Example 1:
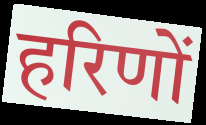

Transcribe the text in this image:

हरिणों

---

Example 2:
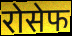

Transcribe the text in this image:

रोसेफ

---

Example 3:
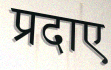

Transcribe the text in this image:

प्रदाए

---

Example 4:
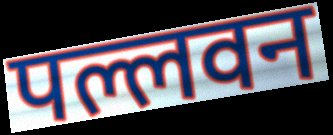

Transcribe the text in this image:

पल्लवन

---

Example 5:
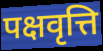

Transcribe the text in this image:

पक्षवृत्ति